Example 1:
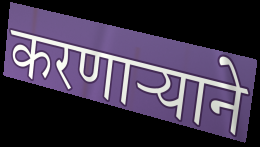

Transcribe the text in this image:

करणाऱ्याने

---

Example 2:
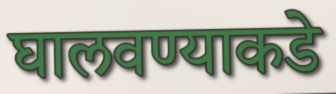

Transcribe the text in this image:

घालवण्याकडे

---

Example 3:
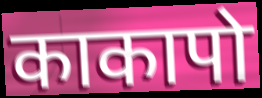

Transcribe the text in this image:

काकापो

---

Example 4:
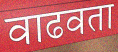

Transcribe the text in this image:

वाढवता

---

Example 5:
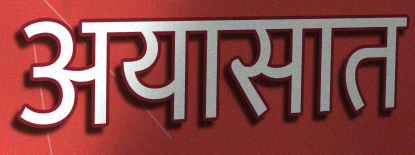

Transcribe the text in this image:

अयासात